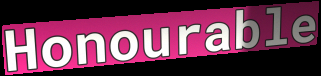
Honourable